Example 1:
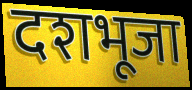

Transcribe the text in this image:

दशभूजा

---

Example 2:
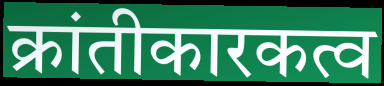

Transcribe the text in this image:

क्रांतीकारकत्व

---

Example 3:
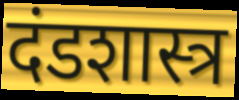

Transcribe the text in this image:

दंडशास्त्र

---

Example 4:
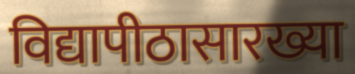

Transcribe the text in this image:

विद्यापीठासारख्या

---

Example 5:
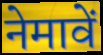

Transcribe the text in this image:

नेमावें